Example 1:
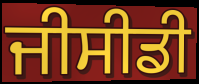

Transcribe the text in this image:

ਜੀਸੀਡੀ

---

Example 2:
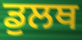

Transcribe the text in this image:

ਡੁਲਥ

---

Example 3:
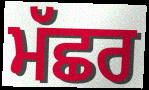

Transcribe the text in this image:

ਮੱਛਰ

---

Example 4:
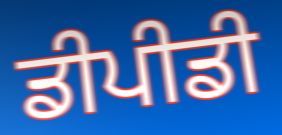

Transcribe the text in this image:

ਡੀਪੀਡੀ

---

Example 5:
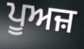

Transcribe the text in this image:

ਪੂਅਜ਼